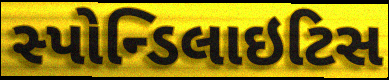
સ્પોન્ડિલાઇટિસ